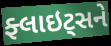
ફ્લાઇટ્સને